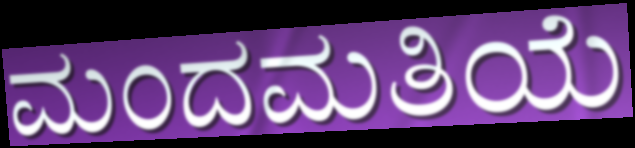
ಮಂದಮತಿಯೆ